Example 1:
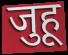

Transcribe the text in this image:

जुहू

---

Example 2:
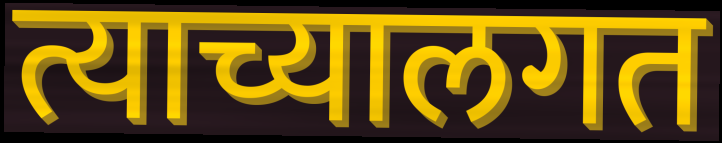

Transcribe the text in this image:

त्याच्यालगत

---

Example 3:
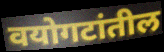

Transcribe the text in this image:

वयोगटांतील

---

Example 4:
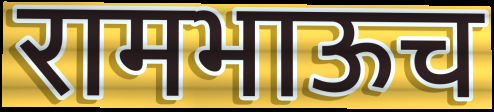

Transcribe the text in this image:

रामभाऊच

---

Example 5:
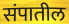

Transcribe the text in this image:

संपातील